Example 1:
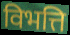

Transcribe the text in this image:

विभत्ति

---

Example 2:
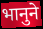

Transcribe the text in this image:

भानुने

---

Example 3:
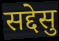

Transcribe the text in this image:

सद्देसु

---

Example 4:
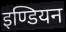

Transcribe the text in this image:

इण्डियन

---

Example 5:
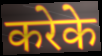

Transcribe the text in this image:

करेके